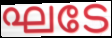
ഘടേ